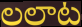
లలాట